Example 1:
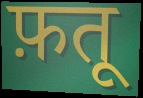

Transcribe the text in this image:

फ़तू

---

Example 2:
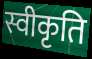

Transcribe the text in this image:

स्‍वीकृति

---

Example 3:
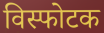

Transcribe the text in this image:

विस्फोटक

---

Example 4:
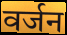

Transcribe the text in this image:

वर्जन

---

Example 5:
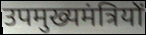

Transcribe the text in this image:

उपमुख्यमंत्रियों